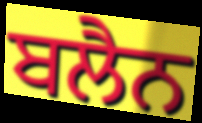
ਬਲੈਨ